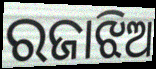
ରଜାଝିଅ